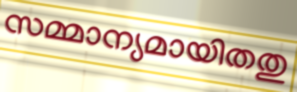
സമ്മാന്യമായിതതു